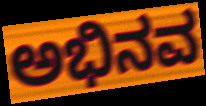
ಅಭಿನವ